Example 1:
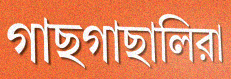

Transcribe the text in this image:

গাছগাছালিরা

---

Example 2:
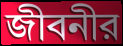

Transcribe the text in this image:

জীবনীর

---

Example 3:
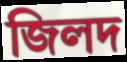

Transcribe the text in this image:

জিলদ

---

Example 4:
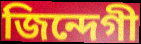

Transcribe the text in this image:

জিন্দেগী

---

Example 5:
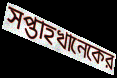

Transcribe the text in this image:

সপ্তাহখানেকের